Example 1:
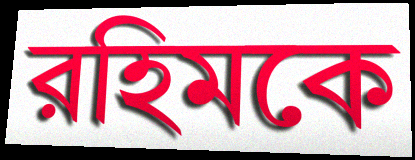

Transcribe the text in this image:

রহিমকে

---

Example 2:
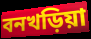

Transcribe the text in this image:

বনখড়িয়া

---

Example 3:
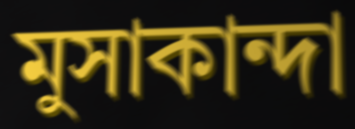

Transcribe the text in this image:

মুসাকান্দা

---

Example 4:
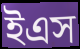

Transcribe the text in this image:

ইএস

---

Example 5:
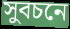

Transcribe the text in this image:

সুবচনে